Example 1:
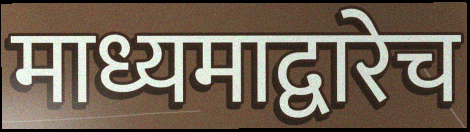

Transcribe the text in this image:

माध्यमाद्वारेच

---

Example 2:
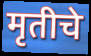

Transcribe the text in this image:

मृतीचे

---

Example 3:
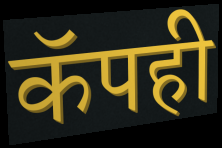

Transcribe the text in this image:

कॅपही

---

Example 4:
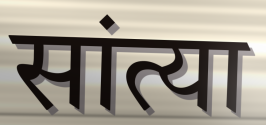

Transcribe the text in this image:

सांत्या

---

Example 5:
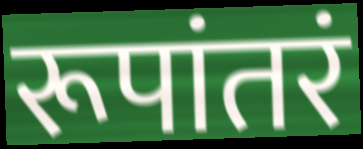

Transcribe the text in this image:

रूपांतरं